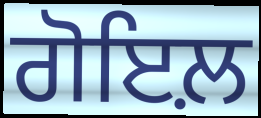
ਗੋਇਲ਼